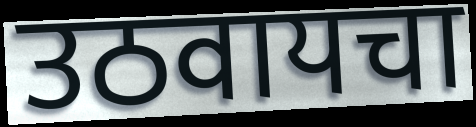
उठवायचा